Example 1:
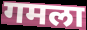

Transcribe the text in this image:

गमला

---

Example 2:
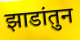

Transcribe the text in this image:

झाडांतुन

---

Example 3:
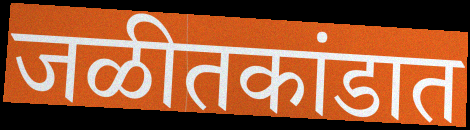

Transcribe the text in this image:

जळीतकांडात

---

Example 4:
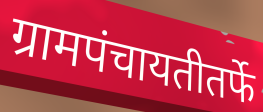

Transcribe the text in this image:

ग्रामपंचायतीतर्फे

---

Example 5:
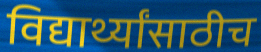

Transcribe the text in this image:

विद्यार्थ्यांसाठीच